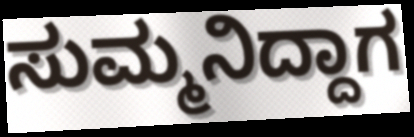
ಸುಮ್ಮನಿದ್ದಾಗ